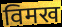
विमख